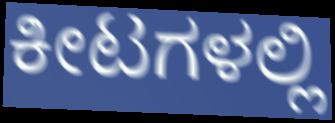
ಕೀಟಗಳಲ್ಲಿ